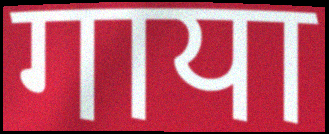
गाया